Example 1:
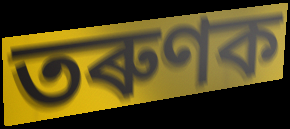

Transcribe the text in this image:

তৰুণক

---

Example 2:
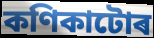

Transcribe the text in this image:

কণিকাটোৰ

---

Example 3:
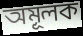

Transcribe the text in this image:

অমূলক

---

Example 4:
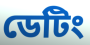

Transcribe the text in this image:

ডেটিং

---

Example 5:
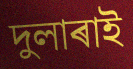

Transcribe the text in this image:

দুলাৰাই